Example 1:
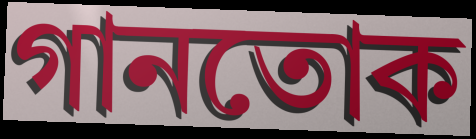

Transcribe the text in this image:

গানতোক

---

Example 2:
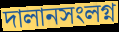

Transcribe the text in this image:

দালানসংলগ্ন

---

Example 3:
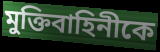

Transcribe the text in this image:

মুক্তিবাহিনীকে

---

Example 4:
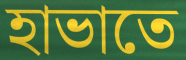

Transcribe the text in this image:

হাভাতে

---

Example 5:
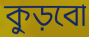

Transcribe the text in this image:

কুড়বো